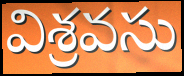
విశ్రవసు